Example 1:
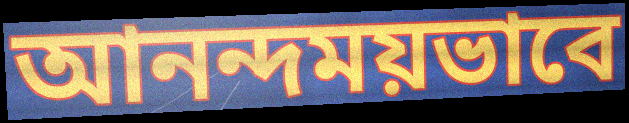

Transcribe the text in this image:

আনন্দময়ভাবে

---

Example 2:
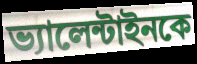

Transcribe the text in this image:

ভ্যালেন্টাইনকে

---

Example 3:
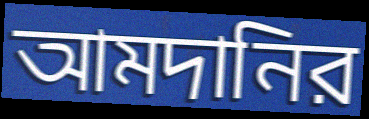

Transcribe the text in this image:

আমদানির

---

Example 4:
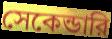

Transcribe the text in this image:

সেকেন্ডারি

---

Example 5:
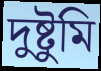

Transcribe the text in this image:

দুষ্টুমি